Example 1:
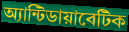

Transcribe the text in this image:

অ্যান্টিডায়াবেটিক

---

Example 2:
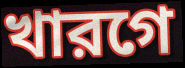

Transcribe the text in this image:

খারগে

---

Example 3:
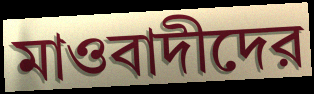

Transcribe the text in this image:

মাওবাদীদের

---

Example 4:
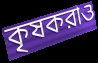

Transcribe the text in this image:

কৃষকরাও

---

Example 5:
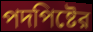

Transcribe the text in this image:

পদপিষ্টের